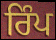
ਰਿੰਪ